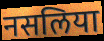
नसलिया